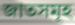
জাতসমূহ